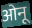
ओनू